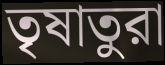
তৃষাতুরা